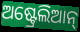
ଅଷ୍ଟ୍ରେଲିଆନ୍